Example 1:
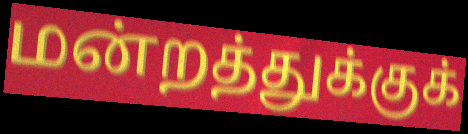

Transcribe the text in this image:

மன்றத்துக்குக்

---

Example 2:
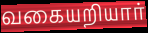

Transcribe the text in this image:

வகையறியார்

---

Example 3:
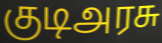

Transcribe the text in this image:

குடிஅரசு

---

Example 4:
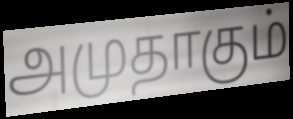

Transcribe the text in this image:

அமுதாகும்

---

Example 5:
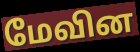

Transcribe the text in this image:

மேவின